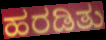
ಹರಡಿತು